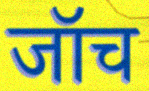
जॉच